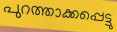
പുറത്താക്കപ്പെട്ടു